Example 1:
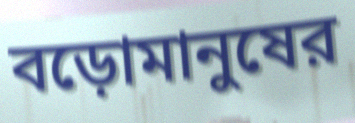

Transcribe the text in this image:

বড়োমানুষের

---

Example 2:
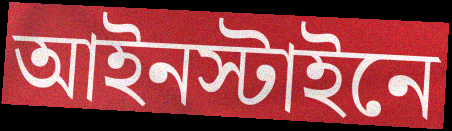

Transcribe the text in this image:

আইনস্টাইনে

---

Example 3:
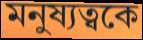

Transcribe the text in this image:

মনুষ্যত্বকে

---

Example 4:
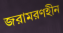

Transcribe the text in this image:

জরামরণহীন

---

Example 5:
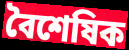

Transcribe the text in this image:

বৈশেষিক